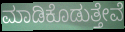
ಮಾಡಿಕೊಡುತ್ತೇವೆ